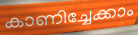
കാണിച്ചേക്കാം